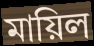
মায়িল